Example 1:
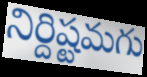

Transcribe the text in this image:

నిర్దిష్టమగు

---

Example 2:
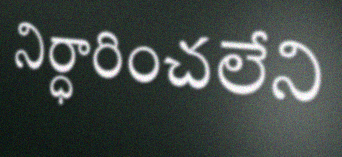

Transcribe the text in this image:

నిర్ధారించలేని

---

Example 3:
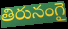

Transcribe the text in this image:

తిరునంగై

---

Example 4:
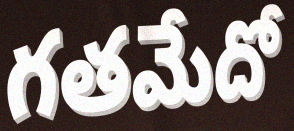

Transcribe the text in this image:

గతమేదో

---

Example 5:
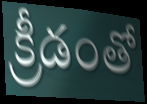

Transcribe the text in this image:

క్రీడంతో